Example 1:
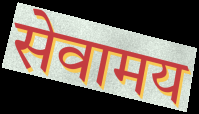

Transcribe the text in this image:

सेवामय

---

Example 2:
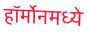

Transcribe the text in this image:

हॉर्मोनमध्ये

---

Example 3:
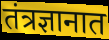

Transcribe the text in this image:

तंत्रज्ञानात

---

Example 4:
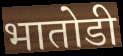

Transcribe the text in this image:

भातोडी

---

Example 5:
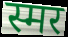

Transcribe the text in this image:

स्मर